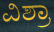
ವಿಶ್ರಾ